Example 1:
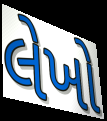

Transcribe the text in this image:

લેખો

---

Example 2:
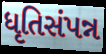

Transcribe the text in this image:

ધૃતિસંપન્ન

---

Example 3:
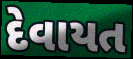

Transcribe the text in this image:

દેવાયત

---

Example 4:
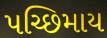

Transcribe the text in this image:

પચ્છિમાય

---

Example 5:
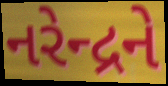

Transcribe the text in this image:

નરેન્દ્રને